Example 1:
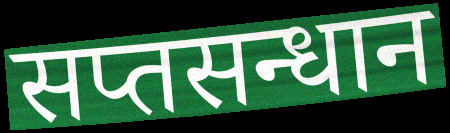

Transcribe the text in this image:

सप्तसन्धान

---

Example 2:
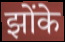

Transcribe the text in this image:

झोंके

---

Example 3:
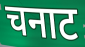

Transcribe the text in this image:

चनाट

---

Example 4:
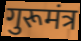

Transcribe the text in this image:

गुरूमंत्र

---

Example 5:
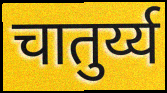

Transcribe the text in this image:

चातुर्य्य